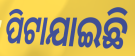
ପିଟାଯାଇଛି